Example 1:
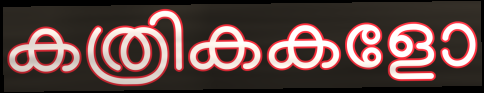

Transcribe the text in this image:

കത്രികകളോ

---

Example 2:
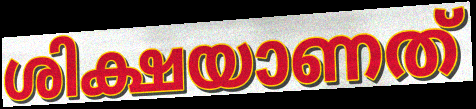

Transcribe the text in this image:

ശിക്ഷയാണത്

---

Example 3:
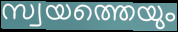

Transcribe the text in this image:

സ്വയത്തെയും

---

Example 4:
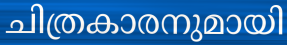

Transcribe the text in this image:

ചിത്രകാരനുമായി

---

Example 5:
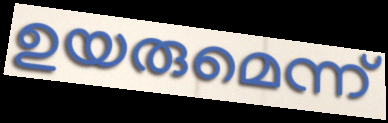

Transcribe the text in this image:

ഉയരുമെന്ന്